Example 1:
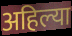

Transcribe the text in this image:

अहिल्या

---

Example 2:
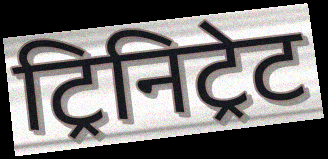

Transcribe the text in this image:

ट्रिनिट्रेट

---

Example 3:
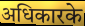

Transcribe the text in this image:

अधिकारके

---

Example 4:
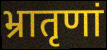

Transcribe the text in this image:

भ्रातृणां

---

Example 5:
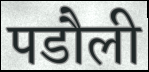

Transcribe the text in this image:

पडौली